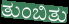
ತುಂಬಿತು